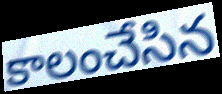
కాలంచేసిన